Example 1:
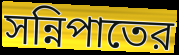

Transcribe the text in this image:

সন্নিপাতের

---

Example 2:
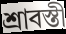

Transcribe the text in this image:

শ্রাবস্তী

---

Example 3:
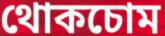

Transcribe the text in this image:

থোকচোম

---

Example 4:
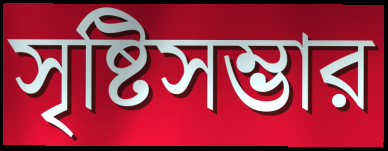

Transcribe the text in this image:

সৃষ্টিসম্ভার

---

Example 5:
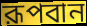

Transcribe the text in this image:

রূপবান